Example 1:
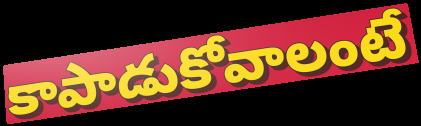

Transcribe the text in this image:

కాపాడుకోవాలంటే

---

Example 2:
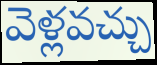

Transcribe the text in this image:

వెళ్లవచ్చు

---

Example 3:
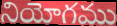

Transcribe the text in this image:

నియోగము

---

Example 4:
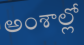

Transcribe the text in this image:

అంశాల్లో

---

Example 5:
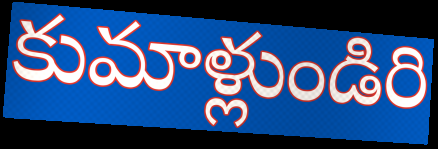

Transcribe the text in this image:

కుమాళ్లుండిరి